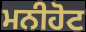
ਮਨੀਹੋਟ